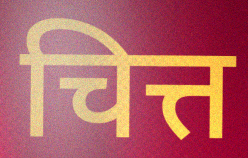
चित्त